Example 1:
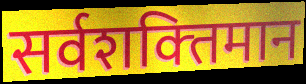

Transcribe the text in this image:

सर्वशक्‍तिमान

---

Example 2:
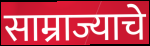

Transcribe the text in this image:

साम्राज्याचे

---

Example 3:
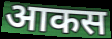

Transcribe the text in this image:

आकस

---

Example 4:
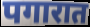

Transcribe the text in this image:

पगारात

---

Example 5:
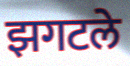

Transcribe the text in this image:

झगटले